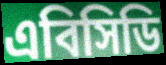
এবিসিডি